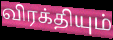
விரக்தியும்